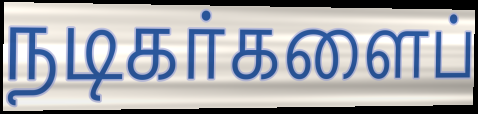
நடிகர்களைப்